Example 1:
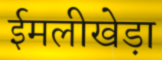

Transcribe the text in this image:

ईमलीखेड़ा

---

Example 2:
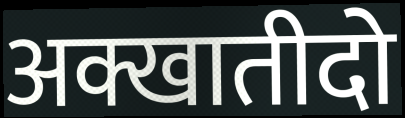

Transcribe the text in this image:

अक्खातीदो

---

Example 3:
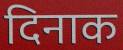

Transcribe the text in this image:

दिनाक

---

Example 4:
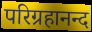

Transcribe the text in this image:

परिग्रहानन्द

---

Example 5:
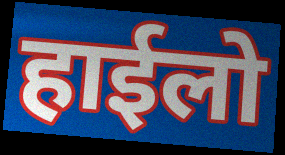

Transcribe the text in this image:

हाईलो